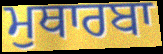
ਮੁਥਾਰਬਾ